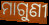
ମାଗୁଣୀ